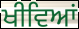
ਖੀਵਿਆਂ